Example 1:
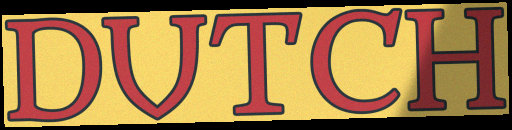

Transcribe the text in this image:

DUTCH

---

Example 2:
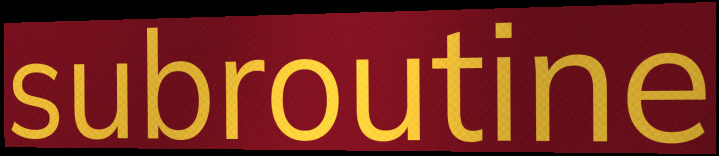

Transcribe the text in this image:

subroutine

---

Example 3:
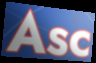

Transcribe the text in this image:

Asc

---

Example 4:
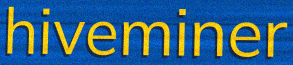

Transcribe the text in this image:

hiveminer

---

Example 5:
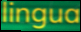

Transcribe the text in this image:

lingua